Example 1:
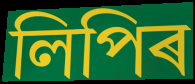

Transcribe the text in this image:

লিপিৰ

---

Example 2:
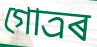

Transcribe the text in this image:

গোত্ৰৰ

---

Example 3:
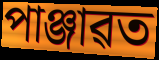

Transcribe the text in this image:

পাঞ্জাৱত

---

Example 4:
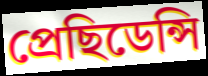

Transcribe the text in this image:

প্ৰেছিডেন্সি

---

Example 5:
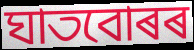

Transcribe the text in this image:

ঘাতবোৰৰ